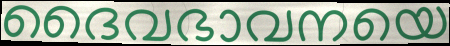
ദൈവഭാവനയെ